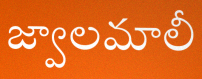
జ్వాలమాలీ